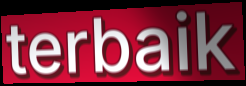
terbaik